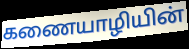
கணையாழியின்